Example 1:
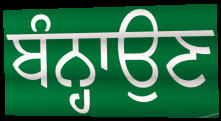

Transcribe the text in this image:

ਬੰਨ੍ਹਾਉਣ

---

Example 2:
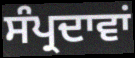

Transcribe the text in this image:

ਸੰਪ੍ਰਦਾਵਾਂ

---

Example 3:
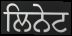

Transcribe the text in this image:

ਲਿਨੇਟ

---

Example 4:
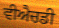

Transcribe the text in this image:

ਵੀਐਚਡੀ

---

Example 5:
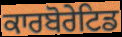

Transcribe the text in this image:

ਕਾਰਬੋਰੇਟਿਡ